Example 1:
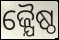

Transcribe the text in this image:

ଜ୍ଯୈଷ୍ଠ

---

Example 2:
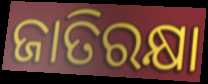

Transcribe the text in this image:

ଜାତିରକ୍ଷା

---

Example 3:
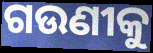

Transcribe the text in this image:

ଗଉଣୀକୁ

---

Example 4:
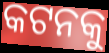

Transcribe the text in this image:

କଟନକୁ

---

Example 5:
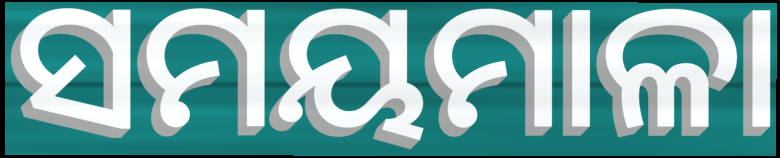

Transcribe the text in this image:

ସମୟମାଳା